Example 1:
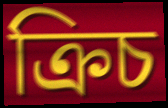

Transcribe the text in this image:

ক্রিচ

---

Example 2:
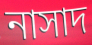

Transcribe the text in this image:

নাসাদ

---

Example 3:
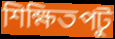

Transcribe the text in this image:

শিক্ষিতপটু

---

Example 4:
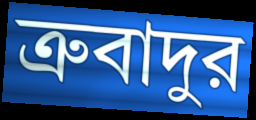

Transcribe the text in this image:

ত্রুবাদুর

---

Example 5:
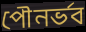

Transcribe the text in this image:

পৌনর্ভব